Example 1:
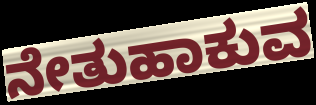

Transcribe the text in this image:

ನೇತುಹಾಕುವ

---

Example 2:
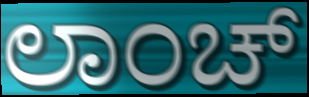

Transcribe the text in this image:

ಲಾಂಚ್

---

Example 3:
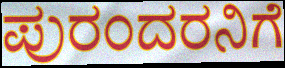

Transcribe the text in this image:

ಪುರಂದರನಿಗೆ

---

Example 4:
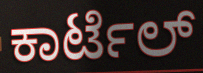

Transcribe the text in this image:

ಕಾರ್ಟೆಲ್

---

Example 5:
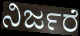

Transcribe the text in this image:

ನಿರ್ಜರೆ